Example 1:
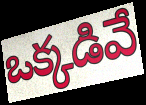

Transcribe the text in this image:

ఒక్కడివే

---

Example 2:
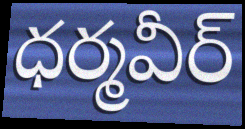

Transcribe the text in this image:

ధర్మవీర్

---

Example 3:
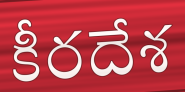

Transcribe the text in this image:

కీరదేశ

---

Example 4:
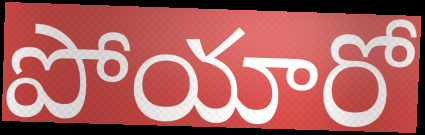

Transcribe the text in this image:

పోయారో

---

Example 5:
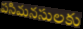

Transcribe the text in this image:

పసిమనసులకు